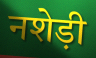
नशेड़ी